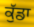
ਕੁੱਡਾ